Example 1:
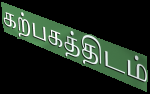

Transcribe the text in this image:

கற்பகத்திடம்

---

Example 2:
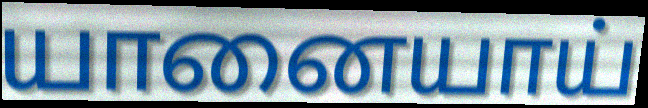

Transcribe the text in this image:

யானையாய்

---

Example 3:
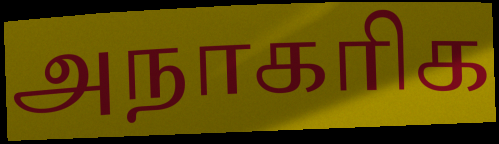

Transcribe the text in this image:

அநாகரிக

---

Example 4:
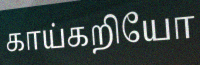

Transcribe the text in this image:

காய்கறியோ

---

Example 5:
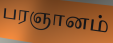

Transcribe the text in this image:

பரஞானம்